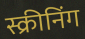
स्क्रीनिंग